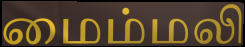
மைம்மலி